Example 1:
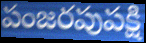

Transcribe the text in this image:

పంజరపుపక్షి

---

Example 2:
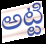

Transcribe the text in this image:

అట్టి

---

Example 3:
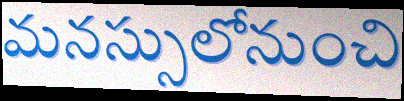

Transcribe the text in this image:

మనస్సులోనుంచి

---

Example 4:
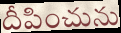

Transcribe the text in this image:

దీపించును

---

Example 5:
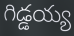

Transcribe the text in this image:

గిడ్డయ్య